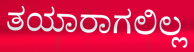
ತಯಾರಾಗಲಿಲ್ಲ